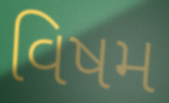
વિષમ